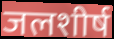
जलशीर्ष